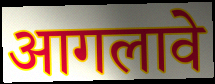
आगलावे